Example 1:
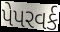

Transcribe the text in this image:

પેપરવર્ક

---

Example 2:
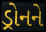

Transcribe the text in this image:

ડ્રોનને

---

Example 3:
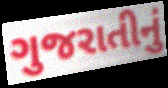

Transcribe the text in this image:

ગુજરાતીનું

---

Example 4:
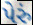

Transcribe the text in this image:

પેરું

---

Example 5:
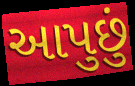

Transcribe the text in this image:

આપુછું